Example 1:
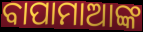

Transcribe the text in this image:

ବାପାମାଆଙ୍କ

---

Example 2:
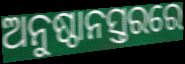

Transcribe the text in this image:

ଅନୁଷ୍ଠାନସ୍ତରରେ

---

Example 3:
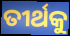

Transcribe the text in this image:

ତୀର୍ଥକୁ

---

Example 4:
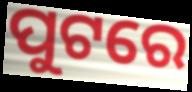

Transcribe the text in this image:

ପୁଟରେ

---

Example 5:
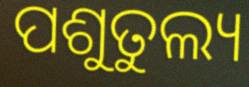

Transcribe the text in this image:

ପଶୁତୁଲ୍ୟ